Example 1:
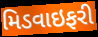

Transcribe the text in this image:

મિડવાઇફરી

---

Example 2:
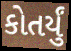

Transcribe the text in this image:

કોતર્યું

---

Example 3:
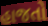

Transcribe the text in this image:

હાજતો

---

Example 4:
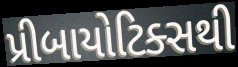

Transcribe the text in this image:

પ્રીબાયોટિક્સથી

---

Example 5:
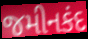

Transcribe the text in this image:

જમીનકંદ